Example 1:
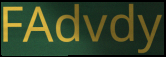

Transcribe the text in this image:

FAdvdy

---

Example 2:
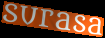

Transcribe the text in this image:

surasa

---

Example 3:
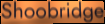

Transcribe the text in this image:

Shoobridge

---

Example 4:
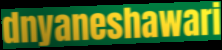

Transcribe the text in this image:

dnyaneshawari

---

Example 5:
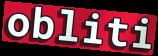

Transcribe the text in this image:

obliti